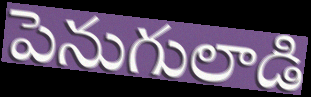
పెనుగులాడి